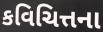
કવિચિત્તના